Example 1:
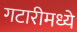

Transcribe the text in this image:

गटारीमध्ये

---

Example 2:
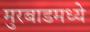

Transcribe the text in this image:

मुरबाडमध्ये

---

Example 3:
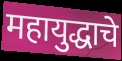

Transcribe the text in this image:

महायुद्धाचे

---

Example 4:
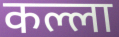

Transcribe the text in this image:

कल्ला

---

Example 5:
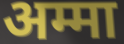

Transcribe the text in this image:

अम्मा